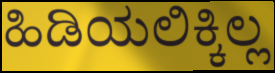
ಹಿಡಿಯಲಿಕ್ಕಿಲ್ಲ